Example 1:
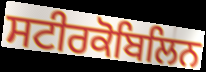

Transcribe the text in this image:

ਸਟੀਰਕੋਬਿਲਿਨ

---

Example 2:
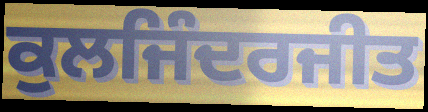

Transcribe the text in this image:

ਕੁਲਜਿੰਦਰਜੀਤ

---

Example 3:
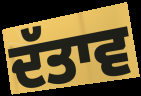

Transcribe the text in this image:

ਦੱਤਾਵ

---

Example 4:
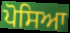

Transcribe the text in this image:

ਪੋਸਿਆ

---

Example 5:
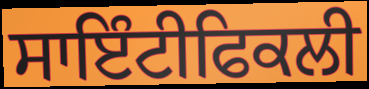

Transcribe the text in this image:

ਸਾਇੰਟੀਫਿਕਲੀ